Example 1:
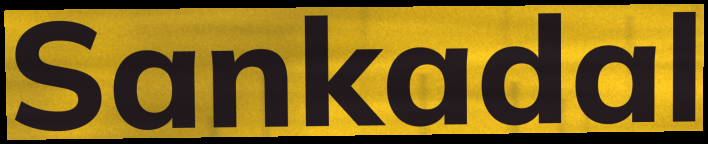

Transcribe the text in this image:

Sankadal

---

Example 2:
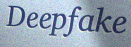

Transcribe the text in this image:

Deepfake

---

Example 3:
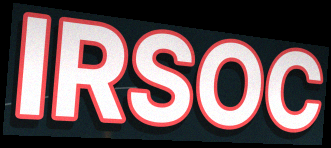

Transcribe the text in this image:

IRSOC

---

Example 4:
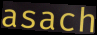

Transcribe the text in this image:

asach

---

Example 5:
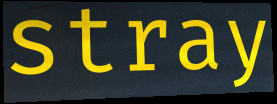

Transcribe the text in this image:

stray